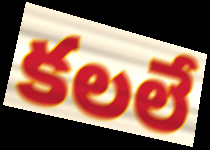
కలలే